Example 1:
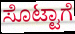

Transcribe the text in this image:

ಸೊಟ್ಟಾಗೆ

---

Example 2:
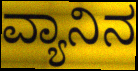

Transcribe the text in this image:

ವ್ಯಾನಿನ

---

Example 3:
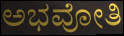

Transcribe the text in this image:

ಅಭವೋತಿ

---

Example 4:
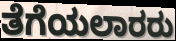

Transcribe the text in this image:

ತೆಗೆಯಲಾರರು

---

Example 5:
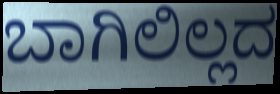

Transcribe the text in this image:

ಬಾಗಿಲಿಲ್ಲದ